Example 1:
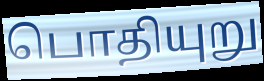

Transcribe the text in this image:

பொதியுறு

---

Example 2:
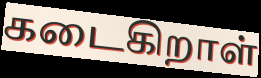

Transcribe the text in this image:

கடைகிறாள்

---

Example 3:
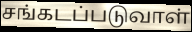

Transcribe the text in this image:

சங்கடப்படுவாள்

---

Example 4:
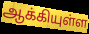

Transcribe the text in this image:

ஆக்கியுள்ள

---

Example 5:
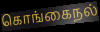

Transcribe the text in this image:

கொங்கைநல்